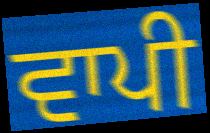
ਵਾਪੀ